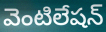
వెంటిలేషన్